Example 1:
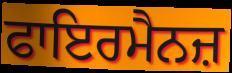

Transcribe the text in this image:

ਫਾਇਰਮੈਨਜ਼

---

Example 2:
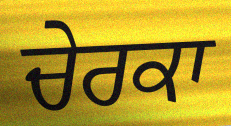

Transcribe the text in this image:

ਚੇਰਕਾ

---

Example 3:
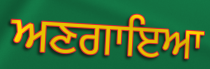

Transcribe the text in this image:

ਅਣਗਾਇਆ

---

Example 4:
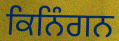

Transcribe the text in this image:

ਕਿਨਿੰਗਨ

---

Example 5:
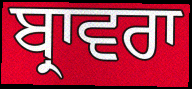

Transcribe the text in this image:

ਬ੍ਰਾਵਰਾ